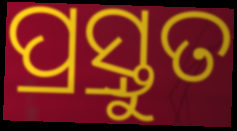
ପ୍ର୍ରସ୍ତୁତ